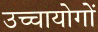
उच्‍चायोगों